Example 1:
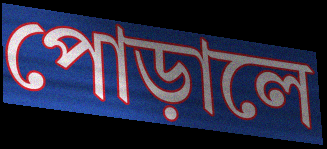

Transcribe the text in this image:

পোড়ালে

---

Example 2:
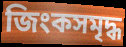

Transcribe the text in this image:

জিংকসমৃদ্ধ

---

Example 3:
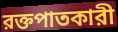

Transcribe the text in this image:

রক্তপাতকারী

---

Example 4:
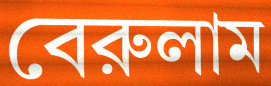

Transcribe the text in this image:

বেরুলাম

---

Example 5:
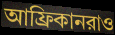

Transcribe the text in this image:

আফ্রিকানরাও